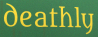
deathly